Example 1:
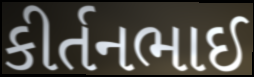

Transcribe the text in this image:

કીર્તનભાઈ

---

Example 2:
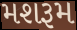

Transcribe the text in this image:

મશરૂમ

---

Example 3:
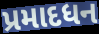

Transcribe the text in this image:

પ્રમાદધન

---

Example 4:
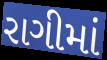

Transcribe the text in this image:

રાગીમાં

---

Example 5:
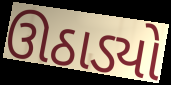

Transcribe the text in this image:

ઊઠાડ્યો